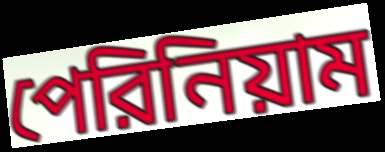
পেরিনিয়াম